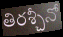
తిరశ్చీనో